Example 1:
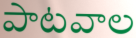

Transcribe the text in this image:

పాటవాల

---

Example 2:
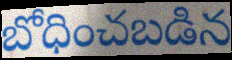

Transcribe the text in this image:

బోధించబడిన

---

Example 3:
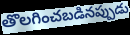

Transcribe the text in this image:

తొలగించబడినప్పుడు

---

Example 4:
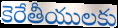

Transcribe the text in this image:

కెరేతీయులకు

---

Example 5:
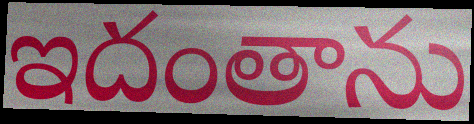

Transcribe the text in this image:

ఇదంతాను